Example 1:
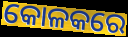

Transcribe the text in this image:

କୋଳକରେ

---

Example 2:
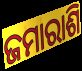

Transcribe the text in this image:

ଜମାରାଶି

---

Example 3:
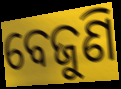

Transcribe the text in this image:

ବେଜୁଣି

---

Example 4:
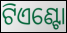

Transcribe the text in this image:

ଟିଏଣ୍ଟୋ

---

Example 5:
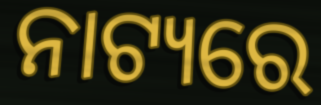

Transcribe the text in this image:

ନାଟ୍ୟରେ